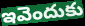
ఇవెందుకు